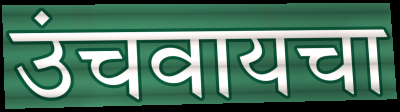
उंचवायचा